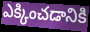
ఎక్కించడానికి